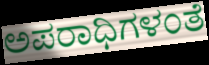
ಅಪರಾಧಿಗಳಂತೆ